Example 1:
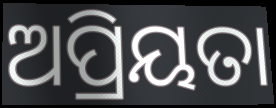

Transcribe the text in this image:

ଅପ୍ରିୟତା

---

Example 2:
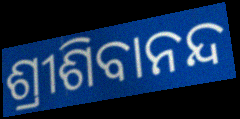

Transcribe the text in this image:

ଶ୍ରୀଶିବାନନ୍ଦ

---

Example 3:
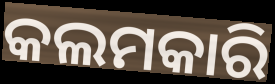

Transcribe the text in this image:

କଲମକାରି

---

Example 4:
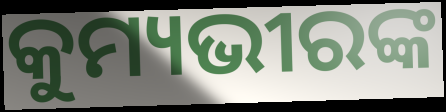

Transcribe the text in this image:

କୁମ୍ୟଭୀରଙ୍କ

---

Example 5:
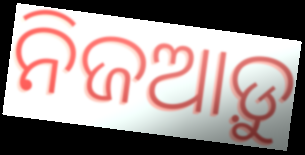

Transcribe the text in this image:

ନିଜଆଡ଼ୁ